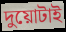
দুয়োটাই